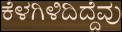
ಕೆಳಗಿಳಿದಿದ್ದೆವು